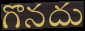
గొనదు